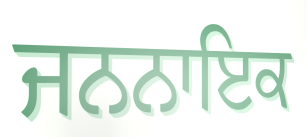
ਜਨਨਾਇਕ